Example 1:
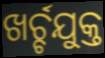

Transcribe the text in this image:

ଖର୍ଚ୍ଚଯୁକ୍ତ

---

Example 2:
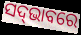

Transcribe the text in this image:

ସଦ୍‌ଭାବରେ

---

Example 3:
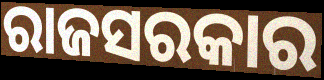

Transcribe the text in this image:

ରାଜସରକାର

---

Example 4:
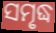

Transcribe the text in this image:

ସମୃଦ୍ଧ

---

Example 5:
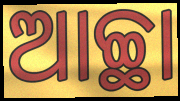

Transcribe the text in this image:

ଆଚ୍ଛା